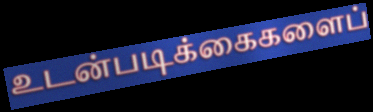
உடன்படிக்கைகளைப்